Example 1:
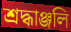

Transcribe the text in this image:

শ্রদ্ধাঞ্জলি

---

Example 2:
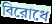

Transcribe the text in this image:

বিরোধে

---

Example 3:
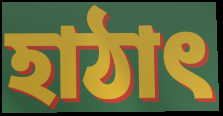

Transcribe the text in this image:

হাঠাৎ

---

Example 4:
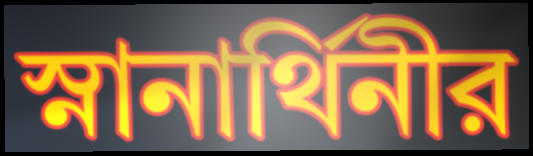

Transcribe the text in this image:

স্নানার্থিনীর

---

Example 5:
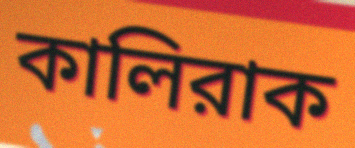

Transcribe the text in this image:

কালিরাক